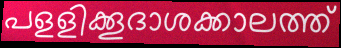
പളളിക്കൂദാശക്കാലത്ത്